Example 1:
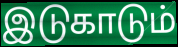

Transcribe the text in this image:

இடுகாடும்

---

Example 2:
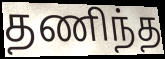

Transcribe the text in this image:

தணிந்த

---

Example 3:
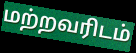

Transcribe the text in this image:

மற்றவரிடம்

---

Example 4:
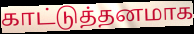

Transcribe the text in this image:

காட்டுத்தனமாக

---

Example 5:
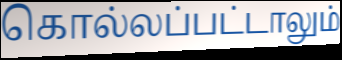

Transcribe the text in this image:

கொல்லப்பட்டாலும்